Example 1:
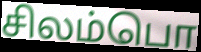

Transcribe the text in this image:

சிலம்பொ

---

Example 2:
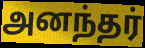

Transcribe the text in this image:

அனந்தர்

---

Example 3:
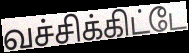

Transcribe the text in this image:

வச்சிக்கிட்டே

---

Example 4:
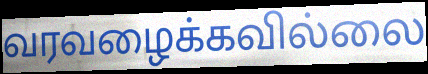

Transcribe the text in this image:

வரவழைக்கவில்லை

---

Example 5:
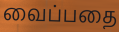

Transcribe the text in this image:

வைப்பதை